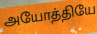
அயோத்தியே